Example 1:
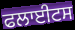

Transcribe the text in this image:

ਫਲਾਈਟਸ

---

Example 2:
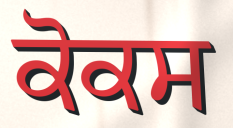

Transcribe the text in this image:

ਕੋਕਸ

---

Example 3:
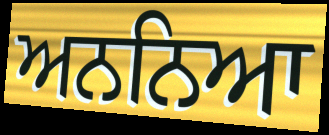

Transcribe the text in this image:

ਅਨਨਿਆ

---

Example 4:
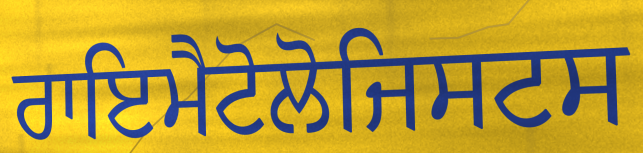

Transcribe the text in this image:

ਰਾਇਮੈਟੋਲੋਜਿਸਟਸ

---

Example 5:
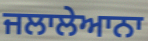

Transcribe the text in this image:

ਜਲਾਲੇਆਨਾ